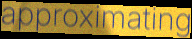
approximating